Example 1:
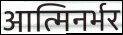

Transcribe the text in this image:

आत्मिनर्भर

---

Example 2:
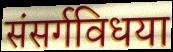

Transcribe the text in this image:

संसर्गविधया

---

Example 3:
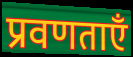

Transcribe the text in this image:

प्रवणताएँ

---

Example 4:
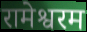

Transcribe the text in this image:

रामेश्वरम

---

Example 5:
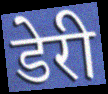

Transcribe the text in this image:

डेरी